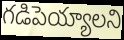
గడిపెయ్యాలని